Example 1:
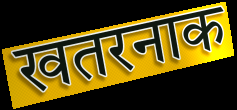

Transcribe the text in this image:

खतरनाक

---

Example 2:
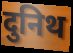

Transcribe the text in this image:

दुनिथ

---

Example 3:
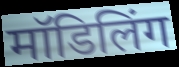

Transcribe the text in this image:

मॉडिलिंग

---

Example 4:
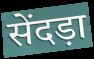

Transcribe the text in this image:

सेंदड़ा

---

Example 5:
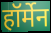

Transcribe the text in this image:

हॉर्मेन